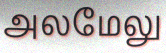
அலமேலு